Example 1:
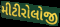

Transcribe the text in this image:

મીટીરોલોજી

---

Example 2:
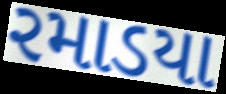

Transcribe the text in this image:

રમાડયા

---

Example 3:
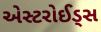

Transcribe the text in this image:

એસ્ટરોઈડ્સ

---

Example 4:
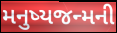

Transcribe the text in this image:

મનુષ્યજન્મની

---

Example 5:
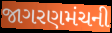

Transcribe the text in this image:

જાગરણમંચની